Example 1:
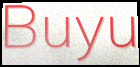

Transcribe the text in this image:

Buyu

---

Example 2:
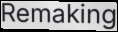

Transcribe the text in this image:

Remaking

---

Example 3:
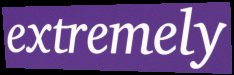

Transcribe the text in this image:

extremely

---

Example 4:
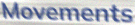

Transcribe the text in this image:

Movements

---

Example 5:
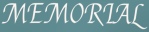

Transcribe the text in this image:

MEMORIAL